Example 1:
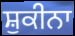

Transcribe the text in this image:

ਸ਼ੁਕੀਨਾ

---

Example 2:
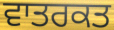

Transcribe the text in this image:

ਵਾਤਰਕਤ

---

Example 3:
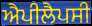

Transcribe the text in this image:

ਐਪੀਲੈਪਸੀ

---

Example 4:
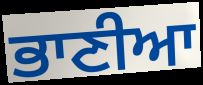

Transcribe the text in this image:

ਭਾਣੀਆ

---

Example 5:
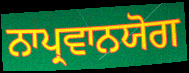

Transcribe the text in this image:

ਨਾਪ੍ਰਵਾਨਯੋਗ